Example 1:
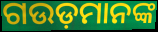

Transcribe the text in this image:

ଗଉଡ଼ମାନଙ୍କ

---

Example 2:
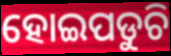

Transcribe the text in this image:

ହୋଇପଡୁଚି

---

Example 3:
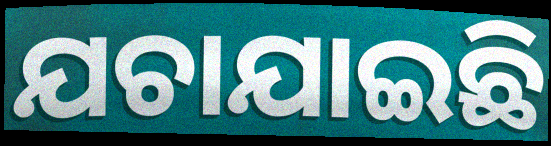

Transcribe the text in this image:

ଯଚାଯାଇଛି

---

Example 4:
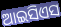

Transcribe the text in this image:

ଆଇସିଏସ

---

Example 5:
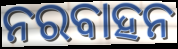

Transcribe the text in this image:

ନରବାହନ